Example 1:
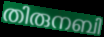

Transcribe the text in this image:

തിരുനബി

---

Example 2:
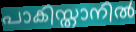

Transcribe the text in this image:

പാകിസ്താനിൽ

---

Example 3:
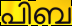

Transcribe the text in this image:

പിബ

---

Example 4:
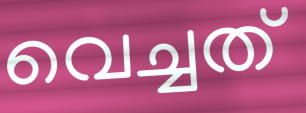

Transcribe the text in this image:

വെച്ചത്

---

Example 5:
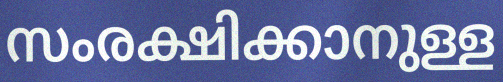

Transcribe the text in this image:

സംരക്ഷിക്കാനുള്ള